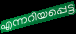
എന്നറിയപ്പെട്ട